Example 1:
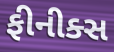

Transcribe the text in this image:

ફીનીક્સ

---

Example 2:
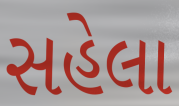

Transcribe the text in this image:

સહેલા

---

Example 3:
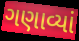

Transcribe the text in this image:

ગણાવ્યાં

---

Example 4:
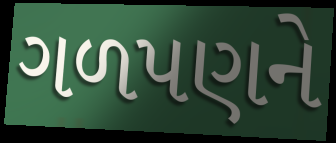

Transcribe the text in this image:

ગળપણને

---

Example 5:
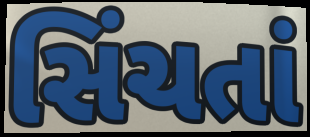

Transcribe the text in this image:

સિંચતાં